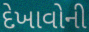
દેખાવોની